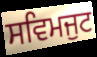
ਸਵਿਮਜੁਟ